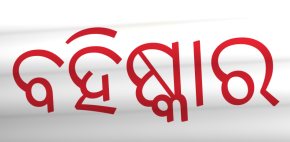
ବହିଷ୍କାର